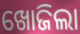
ଖୋଜିଲା